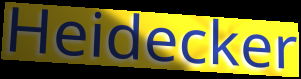
Heidecker